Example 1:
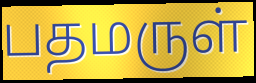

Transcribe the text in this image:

பதமருள்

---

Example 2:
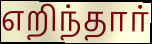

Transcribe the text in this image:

எறிந்தார்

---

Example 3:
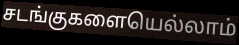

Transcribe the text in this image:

சடங்குகளையெல்லாம்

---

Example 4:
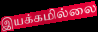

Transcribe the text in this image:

இயக்கமில்லை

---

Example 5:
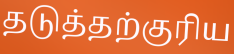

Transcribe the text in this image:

தடுத்தற்குரிய